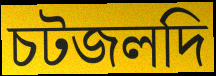
চটজলদি